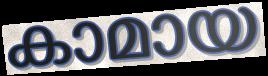
കാമായ